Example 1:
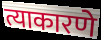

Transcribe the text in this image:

त्याकारणे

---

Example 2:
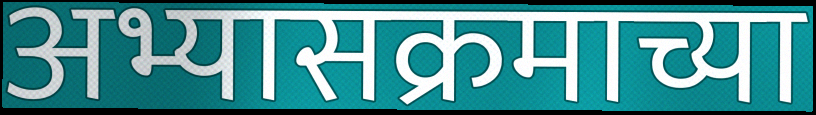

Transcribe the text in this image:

अभ्यासक्रमाच्या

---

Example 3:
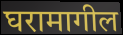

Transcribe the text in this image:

घरामागील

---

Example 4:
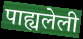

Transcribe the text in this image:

पाह्यलेली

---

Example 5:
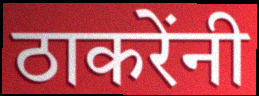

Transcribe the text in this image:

ठाकरेंनी